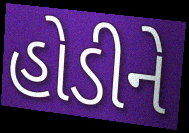
હોડીને